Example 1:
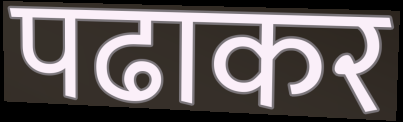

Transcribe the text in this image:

पढाकर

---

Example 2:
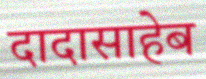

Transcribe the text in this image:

दादासाहेब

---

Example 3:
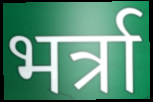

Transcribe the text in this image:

भर्त्रा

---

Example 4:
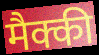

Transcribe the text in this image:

मैक्की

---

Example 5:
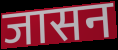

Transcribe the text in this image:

जासन